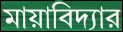
মায়াবিদ্যার